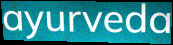
ayurveda